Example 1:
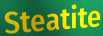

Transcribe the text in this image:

Steatite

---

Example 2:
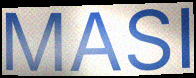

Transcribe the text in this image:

MASI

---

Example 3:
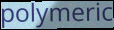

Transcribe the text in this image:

polymeric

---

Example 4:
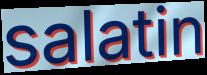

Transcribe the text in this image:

salatin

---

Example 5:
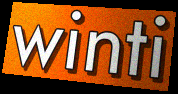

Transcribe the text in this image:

winti